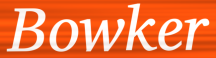
Bowker